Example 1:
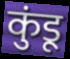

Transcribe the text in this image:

कुंडू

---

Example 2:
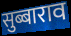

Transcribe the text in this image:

सुब्‍बाराव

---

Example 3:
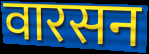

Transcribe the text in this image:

वारसन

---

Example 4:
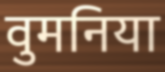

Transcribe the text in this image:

वुमनिया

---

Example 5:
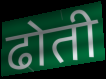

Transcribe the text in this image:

ढोती